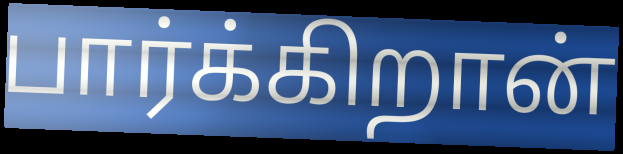
பார்க்கிறான்